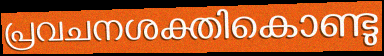
പ്രവചനശക്തികൊണ്ടു